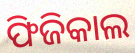
ଫିଜିକାଲ